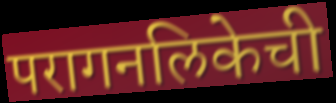
परागनलिकेची